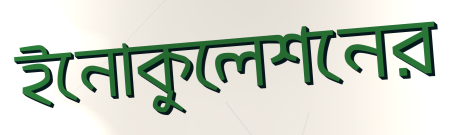
ইনোকুলেশনের